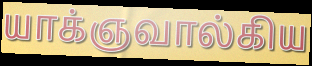
யாக்ஞவால்கிய